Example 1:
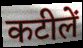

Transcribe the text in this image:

कटीलें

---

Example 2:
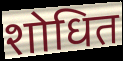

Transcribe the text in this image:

शोधित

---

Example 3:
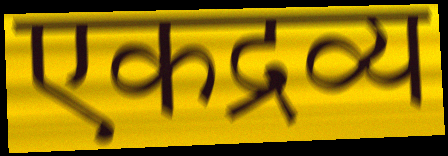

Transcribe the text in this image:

एकद्रव्य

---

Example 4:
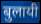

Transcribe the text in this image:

बुलायी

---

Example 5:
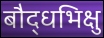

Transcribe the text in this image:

बौद्धभिक्षु